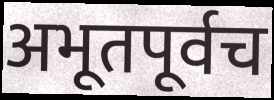
अभूतपूर्वच